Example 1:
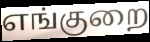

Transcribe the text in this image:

எங்குறை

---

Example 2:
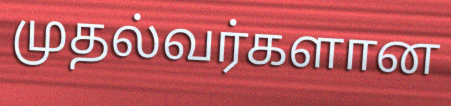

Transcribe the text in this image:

முதல்வர்களான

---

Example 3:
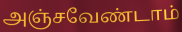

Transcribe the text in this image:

அஞ்சவேண்டாம்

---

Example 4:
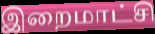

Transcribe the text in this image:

இறைமாட்சி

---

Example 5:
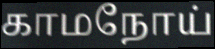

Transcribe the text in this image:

காமநோய்